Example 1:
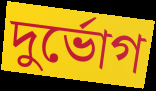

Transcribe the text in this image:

দুর্ভোগ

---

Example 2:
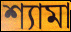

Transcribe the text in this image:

শ্যামা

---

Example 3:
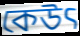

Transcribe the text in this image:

কেউৎ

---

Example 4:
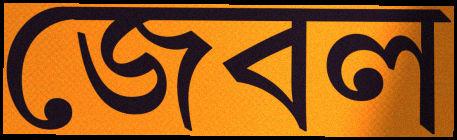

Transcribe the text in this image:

জেবল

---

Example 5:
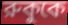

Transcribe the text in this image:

রুকুকে